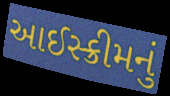
આઈસ્ક્રીમનું